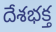
దేశభక్త